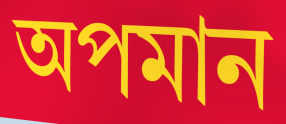
অপমান